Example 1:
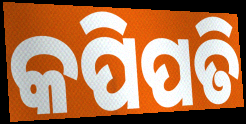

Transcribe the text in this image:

କପିପତି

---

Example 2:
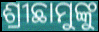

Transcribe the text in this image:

ଶ୍ରୀଛାମୁଙ୍କୁ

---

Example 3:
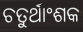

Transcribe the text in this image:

ଚତୁର୍ଥାଂଶକ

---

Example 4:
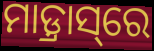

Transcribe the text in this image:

ମାଡ଼୍ରାସ୍‌ରେ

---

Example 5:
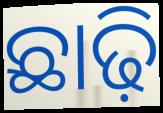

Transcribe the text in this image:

ଛାଢ଼ି